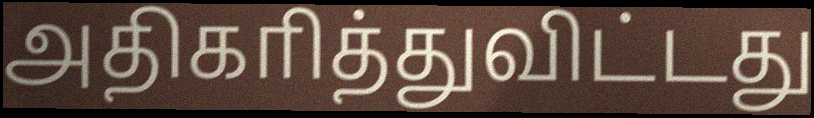
அதிகரித்துவிட்டது